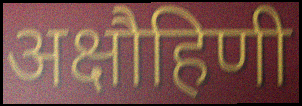
अक्षौहिणी